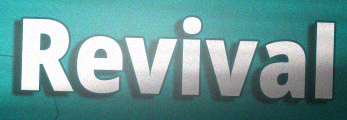
Revival